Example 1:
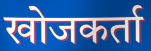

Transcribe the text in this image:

खोजकर्ता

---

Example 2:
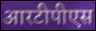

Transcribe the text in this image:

आरटीपीएस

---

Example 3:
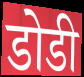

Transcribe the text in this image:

डोडी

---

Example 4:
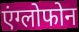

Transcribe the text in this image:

एंग्लोफोन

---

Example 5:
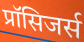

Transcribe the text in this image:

प्रॉसिजर्स